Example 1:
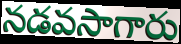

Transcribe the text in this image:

నడవసాగారు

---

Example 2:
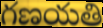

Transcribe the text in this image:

గణయతి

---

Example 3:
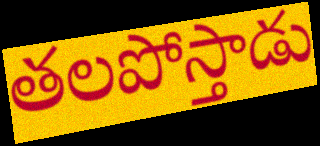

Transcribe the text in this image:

తలపోస్తాడు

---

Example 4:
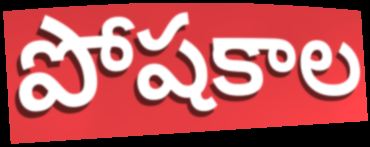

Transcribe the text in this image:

పోషకాల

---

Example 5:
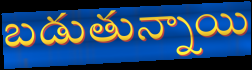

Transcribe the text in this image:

బడుతున్నాయి